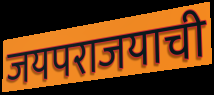
जयपराजयाची